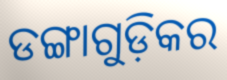
ଡଙ୍ଗାଗୁଡ଼ିକର